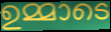
ഉമ്മാടെ